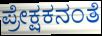
ಪ್ರೇಕ್ಷಕನಂತೆ